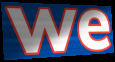
we